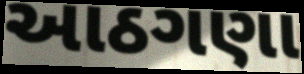
આઠગણા